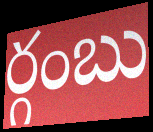
ర్గంబు